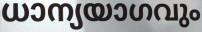
ധാന്യയാഗവും